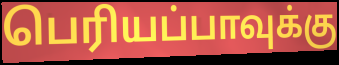
பெரியப்பாவுக்கு